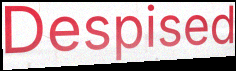
Despised